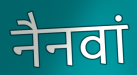
नैनवां